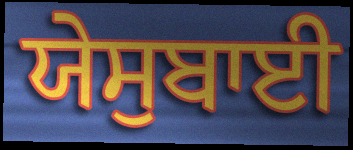
ਯੇਸੁਬਾਈ